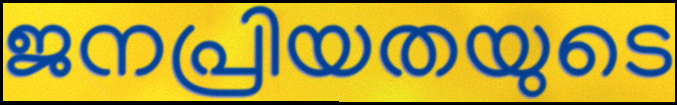
ജനപ്രിയതയുടെ